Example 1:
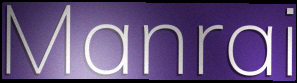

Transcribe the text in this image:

Manrai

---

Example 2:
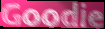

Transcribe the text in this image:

Goodie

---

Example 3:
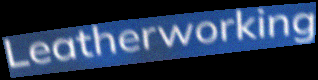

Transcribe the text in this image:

Leatherworking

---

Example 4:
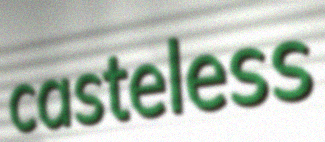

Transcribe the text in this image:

casteless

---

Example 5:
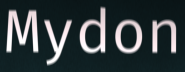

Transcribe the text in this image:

Mydon